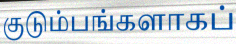
குடும்பங்களாகப்